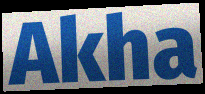
Akha